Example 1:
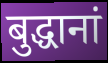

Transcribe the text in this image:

बुद्धानां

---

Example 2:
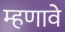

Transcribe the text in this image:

म्हणावे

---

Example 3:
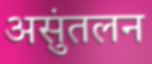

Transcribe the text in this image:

असुंतलन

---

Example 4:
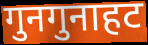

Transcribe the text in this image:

गुनगुनाहट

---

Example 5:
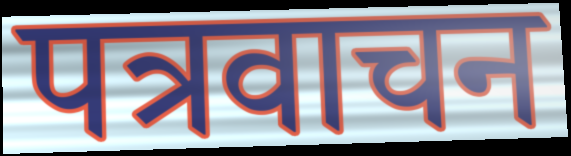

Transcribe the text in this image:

पत्रवाचन